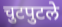
चुटपुटले